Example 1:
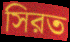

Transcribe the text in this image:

সিরত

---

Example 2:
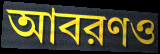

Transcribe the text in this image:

আবরণও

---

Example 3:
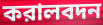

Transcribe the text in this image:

করালবদন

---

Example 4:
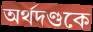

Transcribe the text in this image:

অর্থদণ্ডকে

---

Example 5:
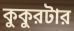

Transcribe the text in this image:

কুকুরটার